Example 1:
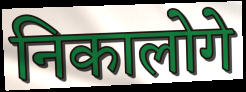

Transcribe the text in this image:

निकालोगे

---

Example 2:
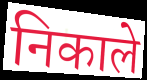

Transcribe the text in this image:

निकाले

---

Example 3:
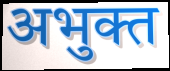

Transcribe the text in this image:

अभुक्त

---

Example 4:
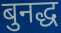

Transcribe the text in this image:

बुनद्ध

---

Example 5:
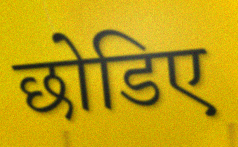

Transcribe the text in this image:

छोडिए